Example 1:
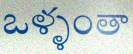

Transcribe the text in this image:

ఒళ్ళంతా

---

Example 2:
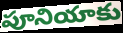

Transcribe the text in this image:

పూనియాకు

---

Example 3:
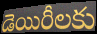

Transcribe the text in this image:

డెయిరీలకు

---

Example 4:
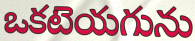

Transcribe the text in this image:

ఒకటెయగును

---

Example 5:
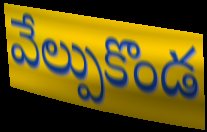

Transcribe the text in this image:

వేల్పుకొండ